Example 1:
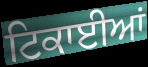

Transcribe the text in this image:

ਟਿਕਾਈਆਂ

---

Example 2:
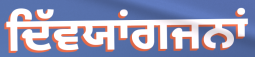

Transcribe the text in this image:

ਦਿੱਵਯਾਂਗਜਨਾਂ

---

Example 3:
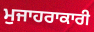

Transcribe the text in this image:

ਮੁਜਾਹਰਾਕਾਰੀ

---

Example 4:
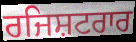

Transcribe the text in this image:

ਰਜਿਸ਼ਟਰਾਰ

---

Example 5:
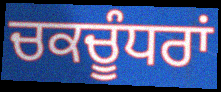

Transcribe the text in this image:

ਚਕਚੂੰਧਰਾਂ